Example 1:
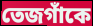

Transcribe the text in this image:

তেজগাঁকে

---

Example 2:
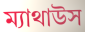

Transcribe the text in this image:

ম্যাথাউস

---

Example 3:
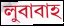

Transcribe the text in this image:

লুবাবাহ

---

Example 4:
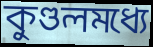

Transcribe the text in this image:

কুণ্ডলমধ্যে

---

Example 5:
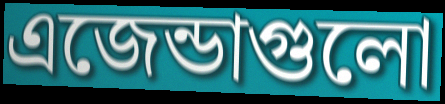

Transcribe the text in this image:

এজেন্ডাগুলো